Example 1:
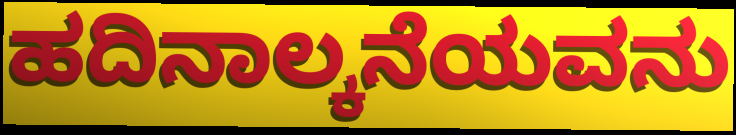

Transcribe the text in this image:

ಹದಿನಾಲ್ಕನೆಯವನು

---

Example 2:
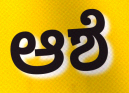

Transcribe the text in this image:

ಆಶೆ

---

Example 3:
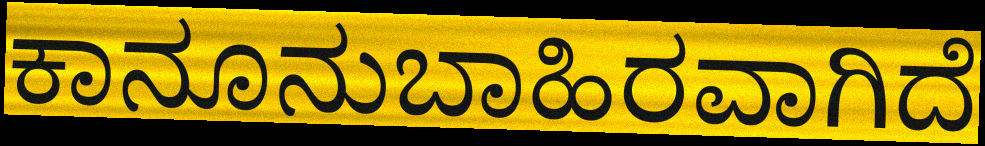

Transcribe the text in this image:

ಕಾನೂನುಬಾಹಿರವಾಗಿದೆ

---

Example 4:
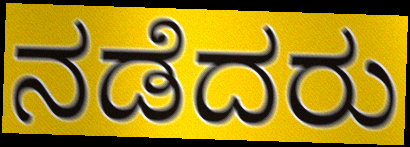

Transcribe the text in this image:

ನಡೆದರು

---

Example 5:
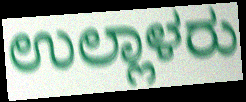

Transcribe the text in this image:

ಉಲ್ಲಾಳರು